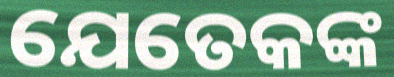
ଯେତେକଙ୍କ